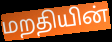
மறதியின்